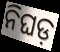
ନିଘଡ଼